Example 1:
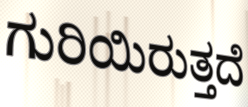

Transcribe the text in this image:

ಗುರಿಯಿರುತ್ತದೆ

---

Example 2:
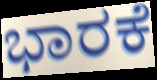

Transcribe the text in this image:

ಭಾರಕೆ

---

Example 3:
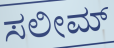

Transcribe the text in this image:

ಸಲೀಮ್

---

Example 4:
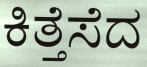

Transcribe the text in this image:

ಕಿತ್ತೆಸೆದ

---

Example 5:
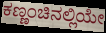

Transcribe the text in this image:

ಕಣ್ಣಂಚಿನಲ್ಲಿಯೇ